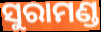
ସୁରାମଣ୍ଡ